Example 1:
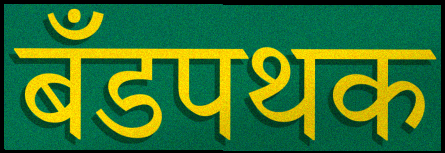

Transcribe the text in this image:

बँडपथक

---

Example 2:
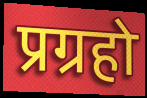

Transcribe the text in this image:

प्रग्रहो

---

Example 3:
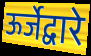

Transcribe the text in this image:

ऊर्जेद्वारे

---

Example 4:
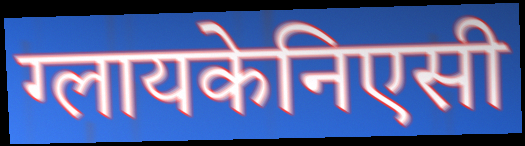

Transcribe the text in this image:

ग्लायकेनिएसी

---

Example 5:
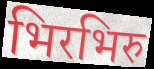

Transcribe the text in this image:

भिरभिरु